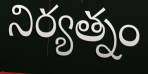
నిర్యత్నం